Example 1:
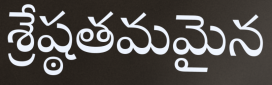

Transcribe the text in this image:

శ్రేష్ఠతమమైన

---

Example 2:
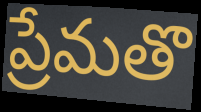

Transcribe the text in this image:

ప్రేమతొ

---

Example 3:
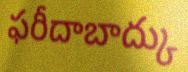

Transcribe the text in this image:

ఫరీదాబాద్కు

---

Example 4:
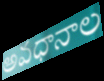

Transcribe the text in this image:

అవధానాల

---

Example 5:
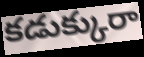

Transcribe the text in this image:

కడుక్కురా